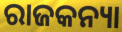
ରାଜକନ୍ୟା